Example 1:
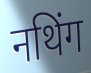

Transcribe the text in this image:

नथिंग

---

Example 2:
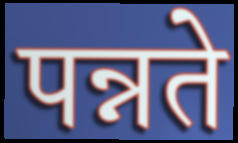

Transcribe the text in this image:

पन्नते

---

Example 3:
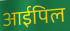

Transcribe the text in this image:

आईपिल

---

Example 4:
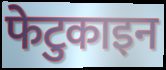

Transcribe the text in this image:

फेटुकाइन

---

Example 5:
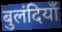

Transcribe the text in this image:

बुलंदियाँ